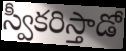
స్వీకరిస్తాడో